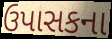
ઉપાસકના